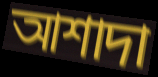
আশাদা